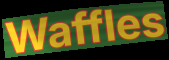
Waffles